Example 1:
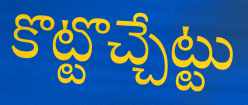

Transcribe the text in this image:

కొట్టొచ్చేట్టు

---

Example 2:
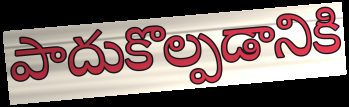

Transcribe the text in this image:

పాదుకొల్పడానికి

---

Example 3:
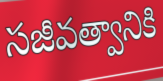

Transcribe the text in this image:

సజీవత్వానికి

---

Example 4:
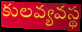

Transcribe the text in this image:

కులవ్యవస్థ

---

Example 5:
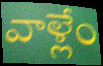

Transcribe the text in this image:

వాళ్లేం